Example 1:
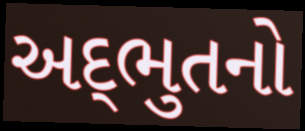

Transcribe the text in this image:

અદ્‌ભુતનો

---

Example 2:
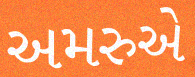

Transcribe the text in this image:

અમરુએ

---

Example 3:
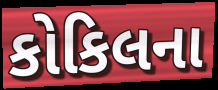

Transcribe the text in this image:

કોકિલના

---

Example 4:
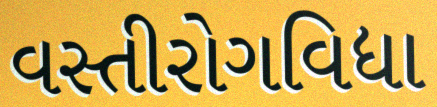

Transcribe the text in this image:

વસ્તીરોગવિદ્યા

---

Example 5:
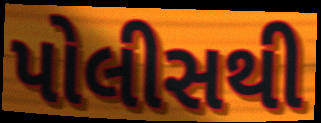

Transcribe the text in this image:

પોલીસથી